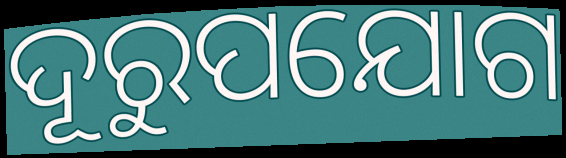
ଦୂରୁପଯୋଗ